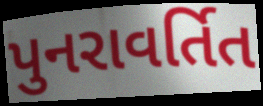
પુનરાવર્તિત